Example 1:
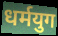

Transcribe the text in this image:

धर्मयुग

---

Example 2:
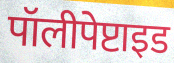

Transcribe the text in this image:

पॉलीपेप्टाइड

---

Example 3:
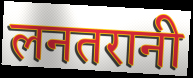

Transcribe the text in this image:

लनतरानी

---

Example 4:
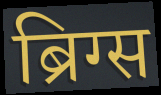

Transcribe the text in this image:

ब्रिग्स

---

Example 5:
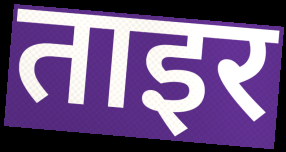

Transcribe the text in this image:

ताइर